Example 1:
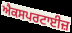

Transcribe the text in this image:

ਐਕਸਪਰਟਾਈਜ਼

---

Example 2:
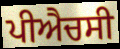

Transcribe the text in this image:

ਪੀਐਚਸੀ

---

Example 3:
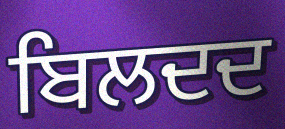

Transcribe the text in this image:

ਬਿਲਦਦ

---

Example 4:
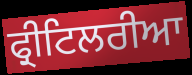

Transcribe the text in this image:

ਫ੍ਰੀਟਿਲਰੀਆ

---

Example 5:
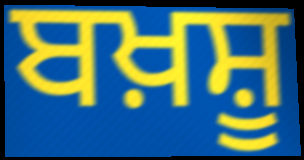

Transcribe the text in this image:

ਬਖ਼ਸ਼ੂ